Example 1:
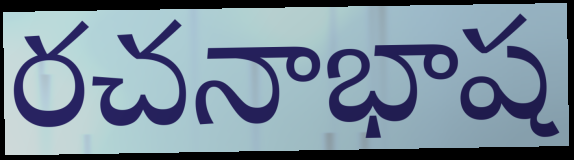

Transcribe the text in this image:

రచనాభాష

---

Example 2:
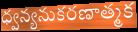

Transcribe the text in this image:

ధ్వన్యనుకరణాత్మక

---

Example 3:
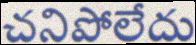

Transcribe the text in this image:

చనిపోలేదు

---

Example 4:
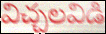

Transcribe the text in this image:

విచ్చలవిడి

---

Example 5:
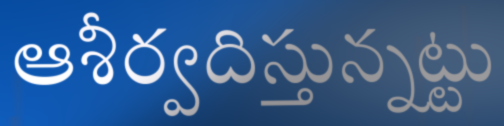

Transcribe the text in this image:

ఆశీర్వదిస్తున్నట్టు